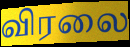
விரலை